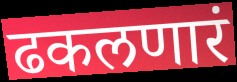
ढकलणारं